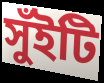
সুঁইটি